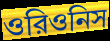
ওরিওনিস